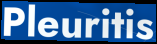
Pleuritis